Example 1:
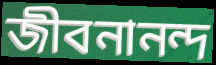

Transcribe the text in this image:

জীবনানন্দ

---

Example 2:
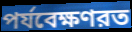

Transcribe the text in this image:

পর্যবেক্ষণরত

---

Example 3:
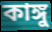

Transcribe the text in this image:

কাঙ্গু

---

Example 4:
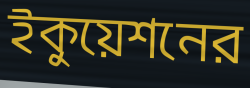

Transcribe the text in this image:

ইকুয়েশনের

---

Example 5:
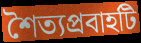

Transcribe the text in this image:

শৈত্যপ্রবাহটি